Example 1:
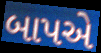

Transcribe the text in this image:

બાપએ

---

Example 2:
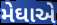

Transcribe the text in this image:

મેઘાએ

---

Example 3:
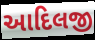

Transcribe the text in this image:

આદિલજી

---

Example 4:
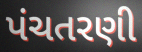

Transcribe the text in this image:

પંચતરણી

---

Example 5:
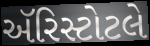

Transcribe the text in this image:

ઍરિસ્ટોટલે